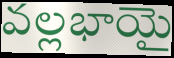
వల్లభాయై